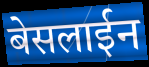
बेसलाईन